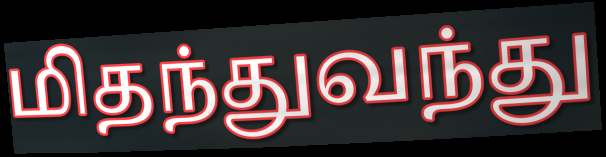
மிதந்துவந்து